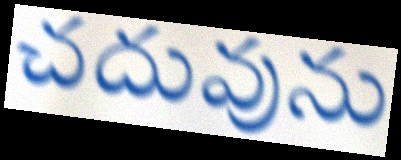
చదువును